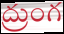
ద్రుంగ